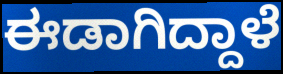
ಈಡಾಗಿದ್ದಾಳೆ